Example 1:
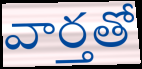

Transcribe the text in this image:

వార్తతో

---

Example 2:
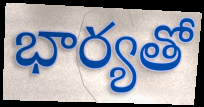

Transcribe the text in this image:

భార్యతో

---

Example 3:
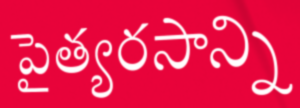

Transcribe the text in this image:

పైత్యరసాన్ని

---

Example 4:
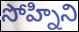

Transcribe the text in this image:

సోహ్నిని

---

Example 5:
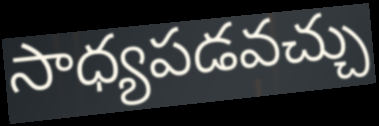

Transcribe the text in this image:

సాధ్యపడవచ్చు